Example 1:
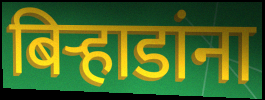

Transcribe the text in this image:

बिऱ्हाडांना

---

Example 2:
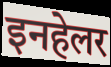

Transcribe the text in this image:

इनहेलर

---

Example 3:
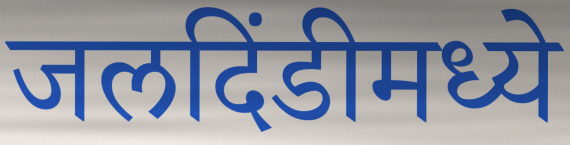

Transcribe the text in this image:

जलदिंडीमध्ये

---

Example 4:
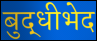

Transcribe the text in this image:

बुद्धीभेद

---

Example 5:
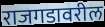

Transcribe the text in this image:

राजगडावरील